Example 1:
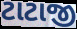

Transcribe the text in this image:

ટાટાજી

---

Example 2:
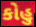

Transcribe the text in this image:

કોહુ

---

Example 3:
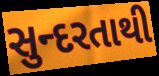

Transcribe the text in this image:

સુન્દરતાથી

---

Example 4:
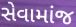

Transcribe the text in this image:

સેવામાંજ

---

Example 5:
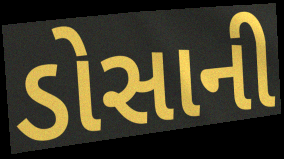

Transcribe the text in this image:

ડોસાની